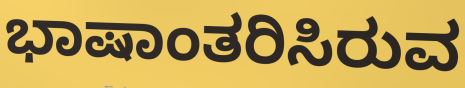
ಭಾಷಾಂತರಿಸಿರುವ